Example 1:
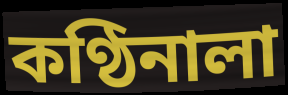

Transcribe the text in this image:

কণ্ঠিনালা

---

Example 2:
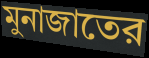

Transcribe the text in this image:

মুনাজাতের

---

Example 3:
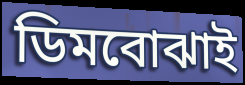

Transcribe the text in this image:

ডিমবোঝাই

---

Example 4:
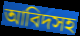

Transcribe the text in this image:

আবিদসহ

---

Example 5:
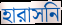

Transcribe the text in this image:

হারাসনি